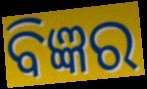
ବିଜ୍ଞର